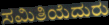
ಸಮಿತಿಯೆದುರು